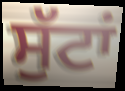
ਸੁੱਟਾਂ